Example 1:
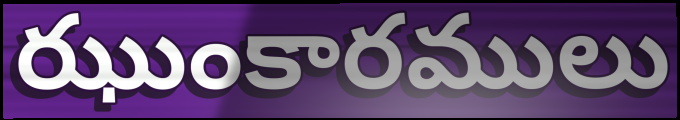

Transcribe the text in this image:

ఝుంకారములు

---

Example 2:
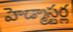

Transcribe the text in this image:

హెడ్మాస్టర్ల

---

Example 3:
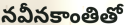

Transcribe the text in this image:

నవీనకాంతితో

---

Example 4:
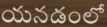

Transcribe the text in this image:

యనడంలో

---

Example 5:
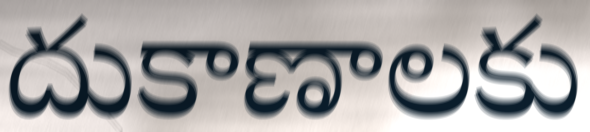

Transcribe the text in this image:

దుకాణాలకు